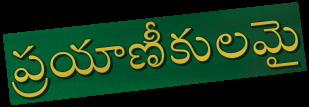
ప్రయాణీకులమై